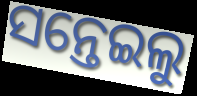
ସନ୍ତେଇଲୁ